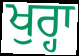
ਖੁਰ੍ਹਾ